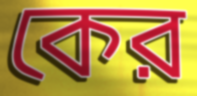
কের